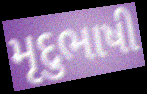
મૃદુભાષી